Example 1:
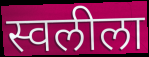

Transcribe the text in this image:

स्वलीला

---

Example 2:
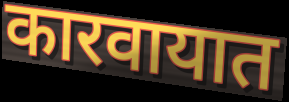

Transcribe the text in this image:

कारवायात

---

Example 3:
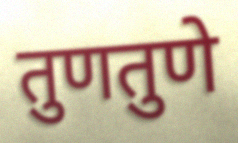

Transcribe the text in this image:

तुणतुणे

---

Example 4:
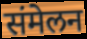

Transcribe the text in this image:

संमेलन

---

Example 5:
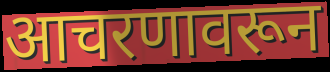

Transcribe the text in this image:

आचरणावरून